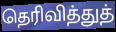
தெரிவித்துத்